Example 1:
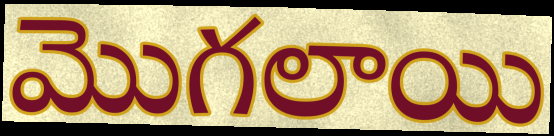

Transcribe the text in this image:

మొగలాయి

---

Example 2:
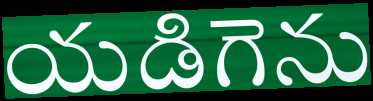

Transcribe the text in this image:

యడిగెను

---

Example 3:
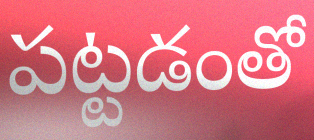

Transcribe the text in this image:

పట్టడంతో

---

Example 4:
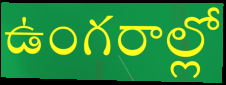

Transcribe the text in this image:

ఉంగరాల్లో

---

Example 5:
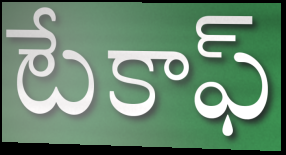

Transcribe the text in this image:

టేకాఫ్